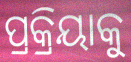
ପ୍ରକ୍ରିୟାକୁ